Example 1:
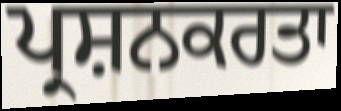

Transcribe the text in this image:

ਪ੍ਰਸ਼ਨਕਰਤਾ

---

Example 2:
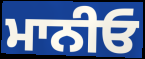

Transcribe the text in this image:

ਮਾਨੀਓ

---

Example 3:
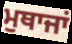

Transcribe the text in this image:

ਮੁਥਾਜਾਂ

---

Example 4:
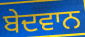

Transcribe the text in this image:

ਬੇਦਵਾਨ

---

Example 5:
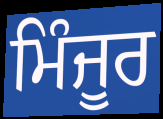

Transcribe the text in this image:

ਮਿੰਜੂਰ